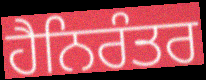
ਹੈਨਿਰੰਤਰ